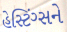
હેસ્ટિંગ્સને